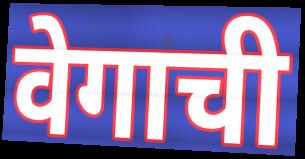
वेगाची